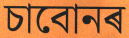
চাবোনৰ